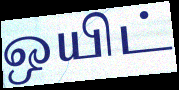
ஒயிட்